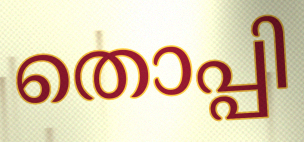
തൊപ്പി